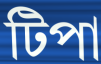
টিপা